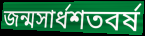
জন্মসার্ধশতবর্ষ